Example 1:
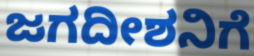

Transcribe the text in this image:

ಜಗದೀಶನಿಗೆ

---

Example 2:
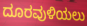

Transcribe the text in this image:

ದೂರವುಳಿಯಲು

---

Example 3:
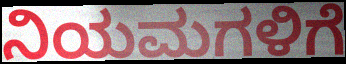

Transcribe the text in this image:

ನಿಯಮಗಳಿಗೆ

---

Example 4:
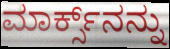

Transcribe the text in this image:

ಮಾರ್ಕ್ಸ್‌ನನ್ನು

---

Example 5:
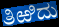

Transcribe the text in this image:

ತಿಱಿದು